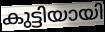
കുട്ടിയായി